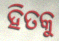
ହିତକୁ